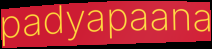
padyapaana